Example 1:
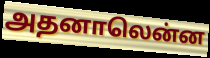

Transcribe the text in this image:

அதனாலென்ன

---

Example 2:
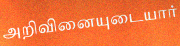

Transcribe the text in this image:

அறிவினையுடையார்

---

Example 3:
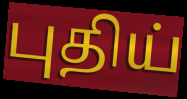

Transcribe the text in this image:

புதிய்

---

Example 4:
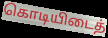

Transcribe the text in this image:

கொடியிடைத்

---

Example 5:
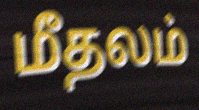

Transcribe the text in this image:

மீதலம்